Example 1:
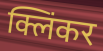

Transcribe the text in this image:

क्लिंकर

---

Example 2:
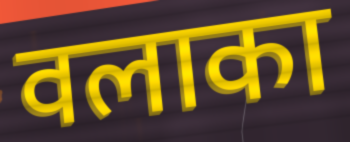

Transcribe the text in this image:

वलाका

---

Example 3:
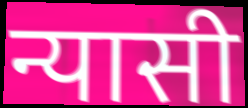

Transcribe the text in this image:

न्यासी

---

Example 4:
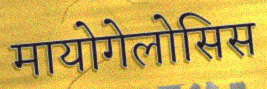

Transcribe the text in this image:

मायोगेलोसिस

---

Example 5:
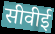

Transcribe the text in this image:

सीवीई